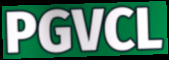
PGVCL